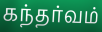
கந்தர்வம்